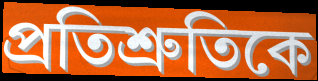
প্রতিশ্রুতিকে